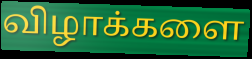
விழாக்களை